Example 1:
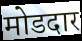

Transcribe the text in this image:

मोडदार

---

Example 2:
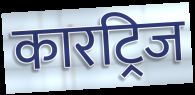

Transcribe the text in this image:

कारट्रिज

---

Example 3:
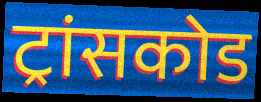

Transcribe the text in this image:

ट्रांसकोड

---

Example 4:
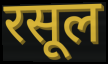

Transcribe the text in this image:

रसूल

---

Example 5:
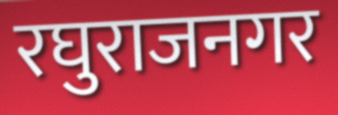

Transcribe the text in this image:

रघुराजनगर